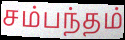
சம்பந்தம்